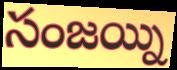
సంజయ్ని